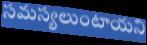
సమస్యలుంటాయని